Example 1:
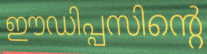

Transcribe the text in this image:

ഈഡിപ്പസിന്റെ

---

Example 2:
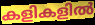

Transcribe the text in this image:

കളികളിൽ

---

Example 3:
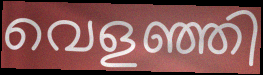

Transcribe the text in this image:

വെളഞ്ഞി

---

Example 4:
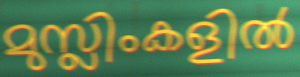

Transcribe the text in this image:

മുസ്ലിംകളിൽ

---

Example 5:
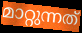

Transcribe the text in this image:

മാറ്റുന്നത്